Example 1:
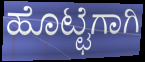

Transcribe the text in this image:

ಹೊಟ್ಟೆಗಾಗಿ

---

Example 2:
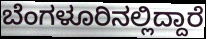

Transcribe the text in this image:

ಬೆಂಗಳೂರಿನಲ್ಲಿದ್ದಾರೆ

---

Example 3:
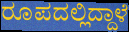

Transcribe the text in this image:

ರೂಪದಲ್ಲಿದ್ದಾಳೆ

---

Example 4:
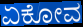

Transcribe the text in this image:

ಏಕೋವ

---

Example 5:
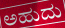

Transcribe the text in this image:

ಅಹುದು